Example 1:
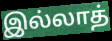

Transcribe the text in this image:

இல்லாத்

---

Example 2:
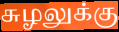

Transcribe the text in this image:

சுழலுக்கு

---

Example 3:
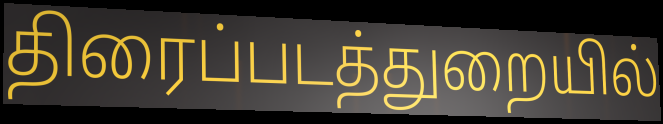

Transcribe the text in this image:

திரைப்படத்துறையில்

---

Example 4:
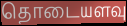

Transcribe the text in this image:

தொடையளவு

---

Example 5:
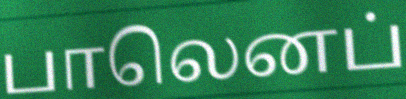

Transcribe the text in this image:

பாலெனப்